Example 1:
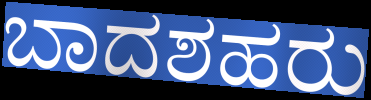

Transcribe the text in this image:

ಬಾದಶಹರು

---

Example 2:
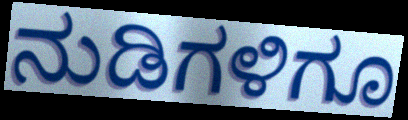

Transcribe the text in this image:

ನುಡಿಗಳಿಗೂ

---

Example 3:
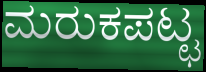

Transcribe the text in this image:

ಮರುಕಪಟ್ಟ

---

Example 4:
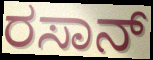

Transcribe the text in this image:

ರಸಾನ್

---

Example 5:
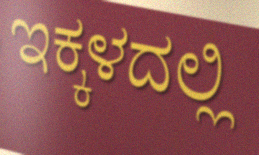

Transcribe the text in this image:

ಇಕ್ಕಳದಲ್ಲಿ